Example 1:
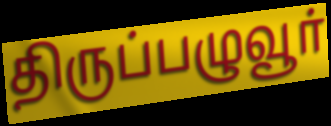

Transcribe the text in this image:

திருப்பழுவூர்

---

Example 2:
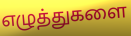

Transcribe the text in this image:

எழுத்துகளை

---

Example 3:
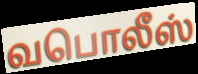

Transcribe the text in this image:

வபொலீஸ்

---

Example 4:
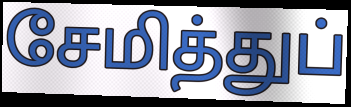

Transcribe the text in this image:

சேமித்துப்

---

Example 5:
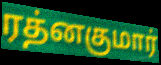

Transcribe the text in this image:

ரத்னகுமார்